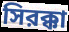
সিরক্কা